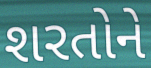
શરતોને